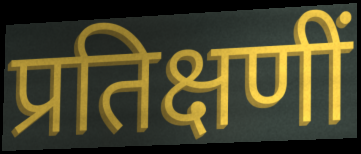
प्रतिक्षणीं